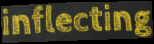
inflecting